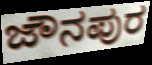
ಜೌನಪುರ